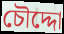
চৌদ্দো